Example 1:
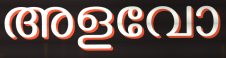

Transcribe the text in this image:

അളവോ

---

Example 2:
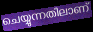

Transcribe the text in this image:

ചെയ്യുന്നതിലാണ്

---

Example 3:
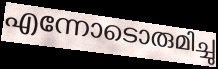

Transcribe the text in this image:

എന്നോടൊരുമിച്ചു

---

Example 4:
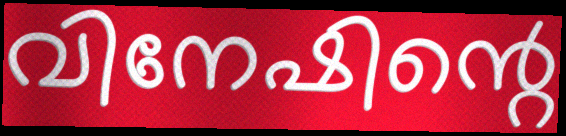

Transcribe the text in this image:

വിനേഷിന്റെ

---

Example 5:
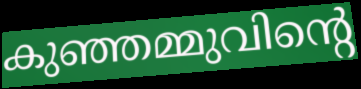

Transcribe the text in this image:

കുഞ്ഞമ്മുവിന്റെ